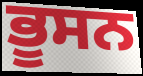
ਭੂਸਨ